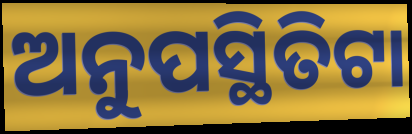
ଅନୁପସ୍ଥିତିଟା